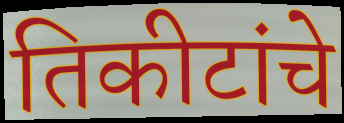
तिकीटांचे